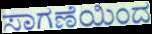
ಸಾಗಣೆಯಿಂದ